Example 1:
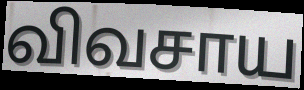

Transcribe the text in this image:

விவசாய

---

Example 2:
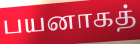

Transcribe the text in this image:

பயனாகத்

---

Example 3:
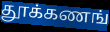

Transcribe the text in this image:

தூக்கணங்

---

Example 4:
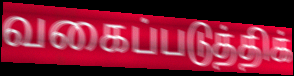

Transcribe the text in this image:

வகைப்படுத்திக்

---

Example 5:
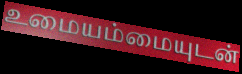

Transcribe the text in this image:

உமையம்மையுடன்